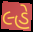
લ્હે